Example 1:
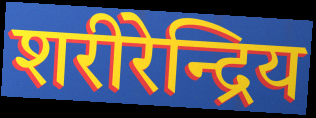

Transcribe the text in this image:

शरीरेन्द्रिय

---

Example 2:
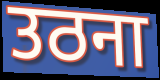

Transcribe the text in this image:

उठना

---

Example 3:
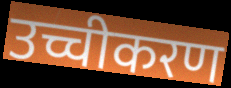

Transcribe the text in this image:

उच्चीकरण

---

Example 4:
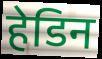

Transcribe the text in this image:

हेडिन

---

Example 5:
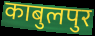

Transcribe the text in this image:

काबुलपुर